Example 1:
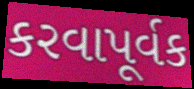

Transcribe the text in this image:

કરવાપૂર્વક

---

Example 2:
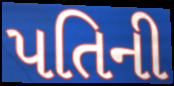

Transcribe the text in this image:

પતિની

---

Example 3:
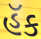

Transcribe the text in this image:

હૅક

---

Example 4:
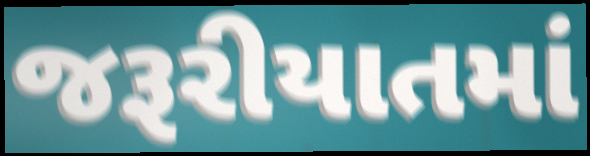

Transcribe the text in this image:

જરૂરીયાતમાં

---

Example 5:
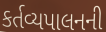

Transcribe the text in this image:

કર્તવ્યપાલનની